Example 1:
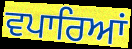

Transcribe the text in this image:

ਵਪਾਰਿਆਂ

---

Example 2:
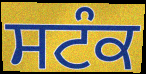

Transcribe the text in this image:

ਸਟੰਕ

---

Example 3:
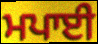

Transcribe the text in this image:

ਮਪਾਈ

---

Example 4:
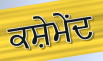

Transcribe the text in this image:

ਕਸ਼ੇਮੇਂਦ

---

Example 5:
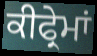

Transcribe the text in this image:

ਕੀਫ੍ਰੇਮਾਂ